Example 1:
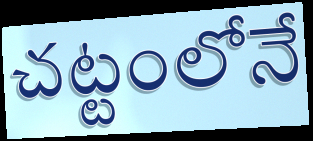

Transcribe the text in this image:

చట్టంలోనే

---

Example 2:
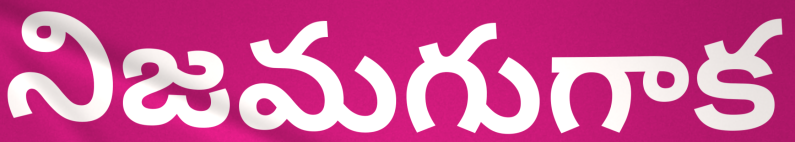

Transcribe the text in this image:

నిజమగుగాక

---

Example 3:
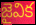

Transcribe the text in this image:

జైవిక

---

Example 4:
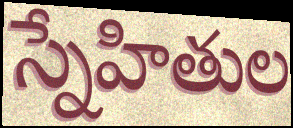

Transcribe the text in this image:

స్నేహితుల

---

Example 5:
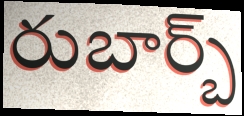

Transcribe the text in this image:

రుబార్బ్